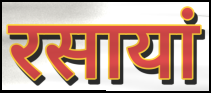
रसायां